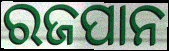
ରଜପାନ